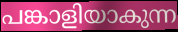
പങ്കാളിയാകുന്ന